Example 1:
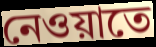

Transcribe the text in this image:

নেওয়াতে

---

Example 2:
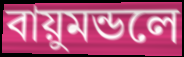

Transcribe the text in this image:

বায়ুমন্ডলে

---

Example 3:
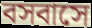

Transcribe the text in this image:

বসবাসে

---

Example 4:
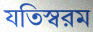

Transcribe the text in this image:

যতিস্বরম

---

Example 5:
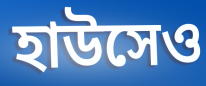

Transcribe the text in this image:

হাউসেও